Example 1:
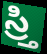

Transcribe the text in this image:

స్ర్తి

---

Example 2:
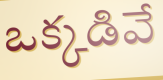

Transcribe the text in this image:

ఒక్కడివే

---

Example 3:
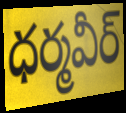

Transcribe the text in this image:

ధర్మవీర్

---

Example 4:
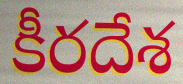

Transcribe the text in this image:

కీరదేశ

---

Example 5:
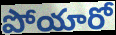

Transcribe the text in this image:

పోయారో